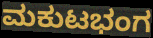
ಮಕುಟಭಂಗ